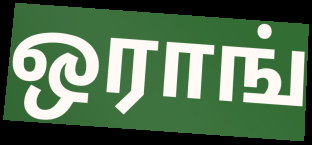
ஒராங்